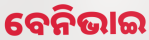
ବେନିଭାଇ